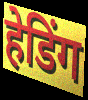
हेडिंग